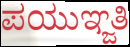
ಪಯುಞ್ಜತಿ